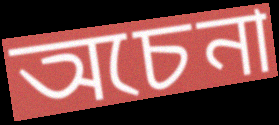
অচেনা